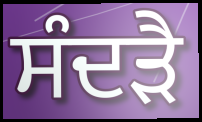
ਸੰਦੜੈ